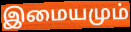
இமையமும்